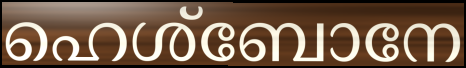
ഹെശ്ബോനേ